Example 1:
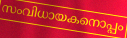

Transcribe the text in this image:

സംവിധായകനൊപ്പം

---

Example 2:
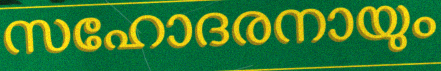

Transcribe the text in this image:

സഹോദരനായും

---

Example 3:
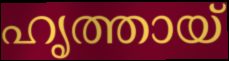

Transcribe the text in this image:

ഹൃത്തായ്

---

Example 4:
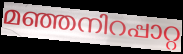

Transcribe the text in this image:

മഞ്ഞനിറപ്പാറ്റ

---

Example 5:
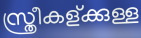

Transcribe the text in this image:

സ്ത്രീകള്ക്കുള്ള